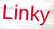
Linky